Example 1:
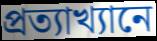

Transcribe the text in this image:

প্রত্যাখ্যানে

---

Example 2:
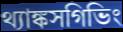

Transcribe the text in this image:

থ্যাঙ্কসগিভিং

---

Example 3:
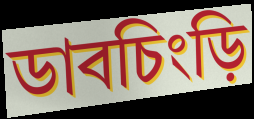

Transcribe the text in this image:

ডাবচিংড়ি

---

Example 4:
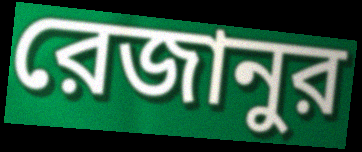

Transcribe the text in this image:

রেজানুর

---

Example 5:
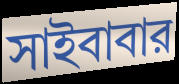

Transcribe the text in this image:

সাইবাবার